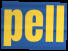
pell